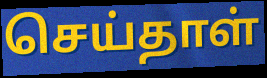
செய்தாள்